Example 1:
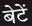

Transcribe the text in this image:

बेटें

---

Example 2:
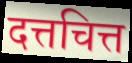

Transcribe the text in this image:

दत्तचित्त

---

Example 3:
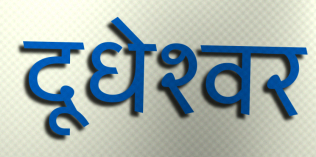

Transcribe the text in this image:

दूधेश्वर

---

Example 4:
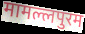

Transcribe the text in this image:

मामल्लपुरम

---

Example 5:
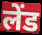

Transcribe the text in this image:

लेंड